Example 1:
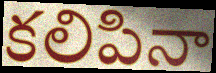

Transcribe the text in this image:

కలిపినా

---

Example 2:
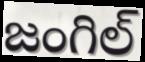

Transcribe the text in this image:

జంగిల్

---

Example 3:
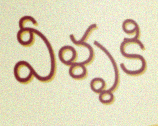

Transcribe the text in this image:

వీళ్ళకి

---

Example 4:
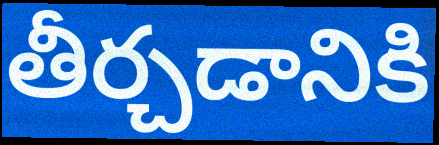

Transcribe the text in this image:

తీర్చడానికి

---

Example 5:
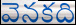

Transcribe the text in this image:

వెనకది